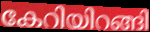
കേറിയിറങ്ങി